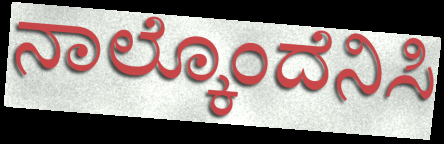
ನಾಲ್ಕೊಂದೆನಿಸಿ